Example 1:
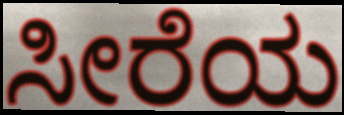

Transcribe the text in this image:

ಸೀರೆಯ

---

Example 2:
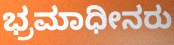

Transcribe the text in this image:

ಭ್ರಮಾಧೀನರು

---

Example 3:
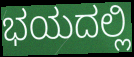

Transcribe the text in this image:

ಭಯದಲ್ಲಿ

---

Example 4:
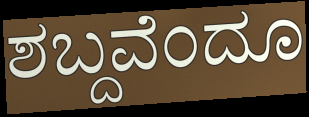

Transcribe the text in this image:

ಶಬ್ದವೆಂದೂ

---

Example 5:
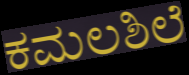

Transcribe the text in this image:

ಕಮಲಶಿಲೆ